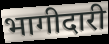
भागीदारी